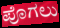
ಪೊಗಲು